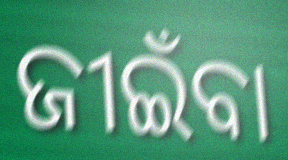
ଜୀଇଁବା